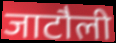
जाटौली